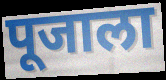
पूजाला